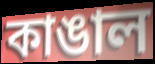
কাঙাল